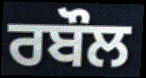
ਰਬੌਲ